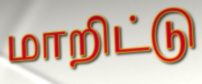
மாறிட்டு